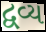
દ્વવ્ય